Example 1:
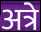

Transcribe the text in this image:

अत्रे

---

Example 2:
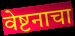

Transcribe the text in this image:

वेष्टनाचा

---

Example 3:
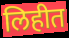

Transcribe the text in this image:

लिहीत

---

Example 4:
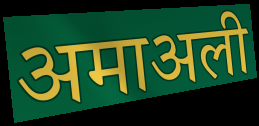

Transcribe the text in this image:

अमाअली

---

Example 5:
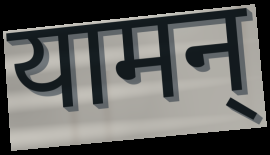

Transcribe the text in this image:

यामन्